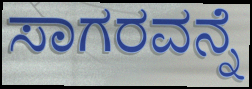
ಸಾಗರವನ್ನೆ